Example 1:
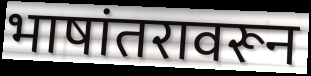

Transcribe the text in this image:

भाषांतरावरून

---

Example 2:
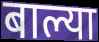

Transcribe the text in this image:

बाल्या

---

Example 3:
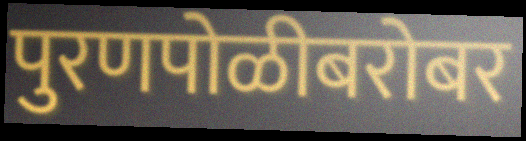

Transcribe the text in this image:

पुरणपोळीबरोबर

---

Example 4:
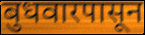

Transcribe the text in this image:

बुधवारपासून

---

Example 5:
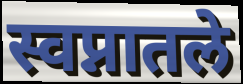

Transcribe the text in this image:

स्वप्नातले